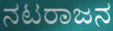
ನಟರಾಜನ